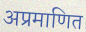
अप्रमाणित